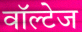
वॉल्टेज